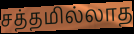
சத்தமில்லாத